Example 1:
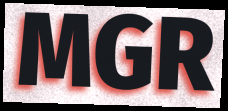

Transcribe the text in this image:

MGR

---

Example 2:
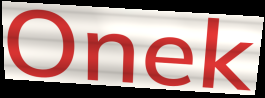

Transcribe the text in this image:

Onek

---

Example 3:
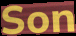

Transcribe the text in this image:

Son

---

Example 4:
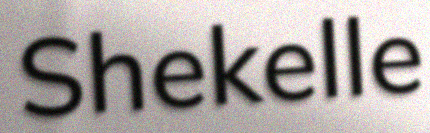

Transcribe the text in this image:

Shekelle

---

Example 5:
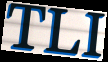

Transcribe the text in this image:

TLI